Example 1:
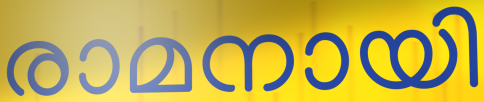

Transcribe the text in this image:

രാമനായി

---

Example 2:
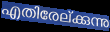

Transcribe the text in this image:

എതിരേല്ക്കുന്നു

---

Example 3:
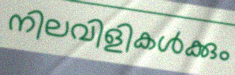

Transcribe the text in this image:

നിലവിളികൾക്കും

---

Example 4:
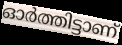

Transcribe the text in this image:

ഓർത്തിട്ടാണ്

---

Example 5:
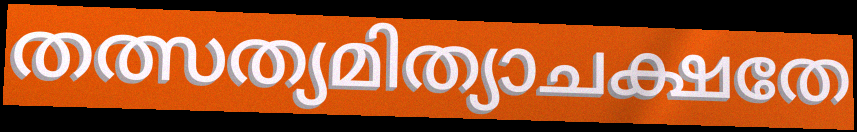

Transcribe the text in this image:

തത്സത്യമിത്യാചക്ഷതേ